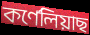
কৰ্ণেলিয়াছ